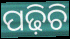
ପଢ଼ିଚି